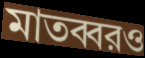
মাতব্বরও